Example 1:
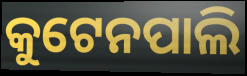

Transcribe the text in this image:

କୁଟେନପାଲି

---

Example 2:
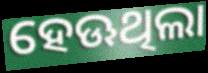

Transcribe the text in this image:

ହେଊଥିଲା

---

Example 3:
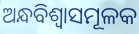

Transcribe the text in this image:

ଅନ୍ଧବିଶ୍ୱାସମୂଳକ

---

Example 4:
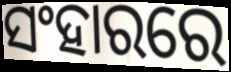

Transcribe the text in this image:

ସଂହାରରେ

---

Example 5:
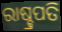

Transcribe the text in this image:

ରାଷ୍ଚ୍ରପତି